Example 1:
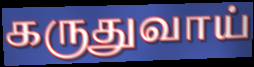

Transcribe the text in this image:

கருதுவாய்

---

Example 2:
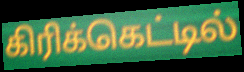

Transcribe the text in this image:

கிரிக்கெட்டில்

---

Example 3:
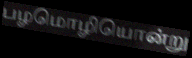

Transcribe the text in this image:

பழமொழியொன்று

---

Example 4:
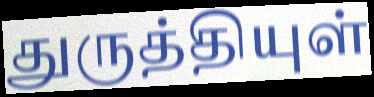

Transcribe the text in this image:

துருத்தியுள்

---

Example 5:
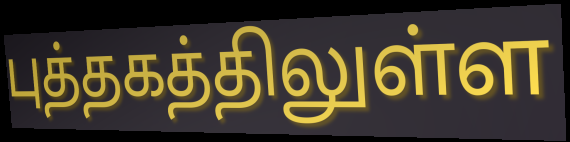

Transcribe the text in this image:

புத்தகத்திலுள்ள